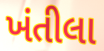
ખંતીલા